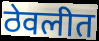
ठेवलीत